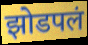
झोडपलं